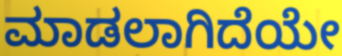
ಮಾಡಲಾಗಿದೆಯೇ